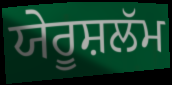
ਯੇਰੂਸ਼ਲੱਮ